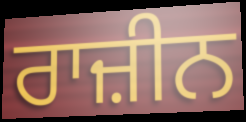
ਰਾਜ਼ੀਨ